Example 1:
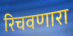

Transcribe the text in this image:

रिचवणारा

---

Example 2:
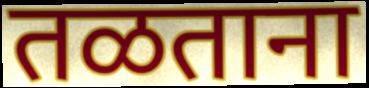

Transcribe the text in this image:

तळताना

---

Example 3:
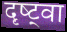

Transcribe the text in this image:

दृष्ट्‍वा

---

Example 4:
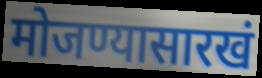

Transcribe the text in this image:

मोजण्यासारखं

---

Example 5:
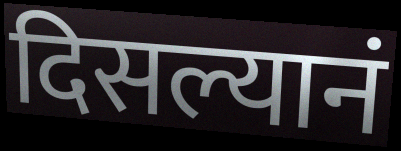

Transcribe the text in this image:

दिसल्यानं